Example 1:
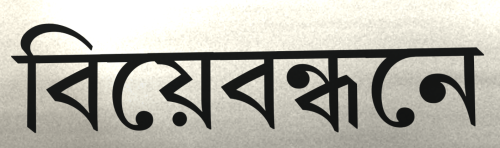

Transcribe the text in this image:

বিয়েবন্ধনে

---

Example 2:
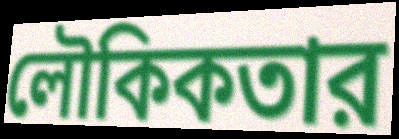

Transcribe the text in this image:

লৌকিকতার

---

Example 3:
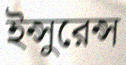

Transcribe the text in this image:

ইন্সুরেন্স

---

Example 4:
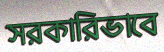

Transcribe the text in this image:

সরকারিভাবে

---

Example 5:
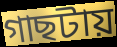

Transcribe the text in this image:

গাছটায়